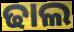
ଢାଲ